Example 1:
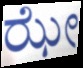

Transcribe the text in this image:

ಝೇ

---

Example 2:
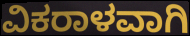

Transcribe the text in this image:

ವಿಕರಾಳವಾಗಿ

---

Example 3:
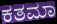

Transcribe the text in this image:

ಕತಮಾ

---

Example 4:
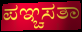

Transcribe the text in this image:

ಪಞ್ಚಸತಾ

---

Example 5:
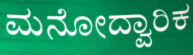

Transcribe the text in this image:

ಮನೋದ್ವಾರಿಕ